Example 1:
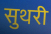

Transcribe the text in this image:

सुथरी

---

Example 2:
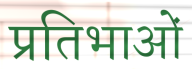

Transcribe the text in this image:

प्रतिभाओं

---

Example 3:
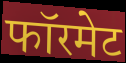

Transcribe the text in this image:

फॉरमेट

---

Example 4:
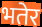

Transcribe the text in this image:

भतेर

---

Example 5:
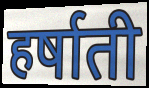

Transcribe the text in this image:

हर्षाती